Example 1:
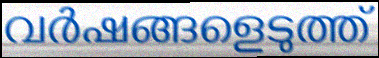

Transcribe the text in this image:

വർഷങ്ങളെടുത്ത്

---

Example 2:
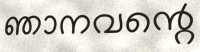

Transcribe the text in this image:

ഞാനവന്റെ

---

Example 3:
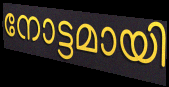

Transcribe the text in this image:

നോട്ടമായി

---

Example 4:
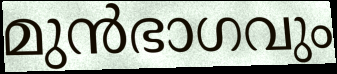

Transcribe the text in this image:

മുൻഭാഗവും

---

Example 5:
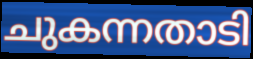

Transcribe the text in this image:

ചുകന്നതാടി